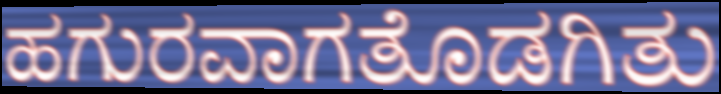
ಹಗುರವಾಗತೊಡಗಿತು